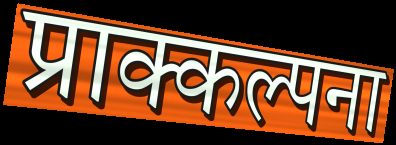
प्राक्कल्पना